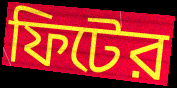
ফিটের